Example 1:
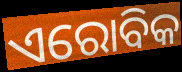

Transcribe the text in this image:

ଏରୋବିକ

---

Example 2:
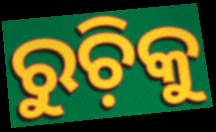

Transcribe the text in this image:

ରୁଚ଼ିକୁ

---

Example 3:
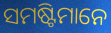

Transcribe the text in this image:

ସମଷ୍ଟିମାନେ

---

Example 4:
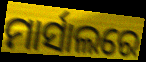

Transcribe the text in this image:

ମାର୍ସାଲରେ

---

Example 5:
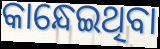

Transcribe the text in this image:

କାନ୍ଧେଇଥିବା